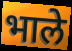
भाले